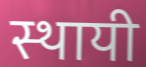
स्थायी